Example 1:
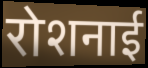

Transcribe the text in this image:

रोशनाई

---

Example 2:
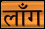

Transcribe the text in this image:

लाँग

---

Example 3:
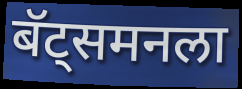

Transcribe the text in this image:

बॅट्समनला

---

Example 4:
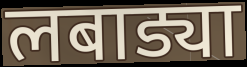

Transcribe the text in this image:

लबाड्या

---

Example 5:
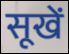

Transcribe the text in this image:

सूखें